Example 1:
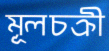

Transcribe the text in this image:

মূলচক্রী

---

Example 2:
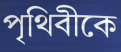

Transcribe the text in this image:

পৃথিবীকে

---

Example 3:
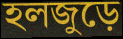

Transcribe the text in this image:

হলজুড়ে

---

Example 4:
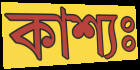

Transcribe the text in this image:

কাশ্যঃ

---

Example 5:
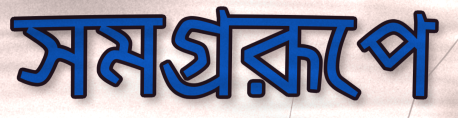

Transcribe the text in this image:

সমগ্ররূপে